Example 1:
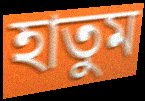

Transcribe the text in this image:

হাতুম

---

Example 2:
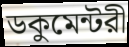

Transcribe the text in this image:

ডকুমেন্টরী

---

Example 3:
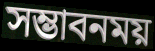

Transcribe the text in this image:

সম্ভাবনময়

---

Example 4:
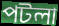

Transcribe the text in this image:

পটলা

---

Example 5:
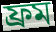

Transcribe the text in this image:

ফ্রম